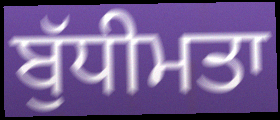
ਬੁੱਧੀਮਤਾ